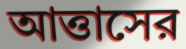
আত্তাসের